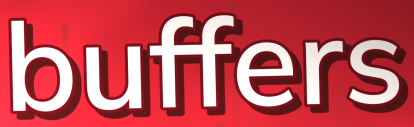
buffers